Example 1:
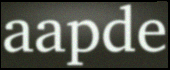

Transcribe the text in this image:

aapde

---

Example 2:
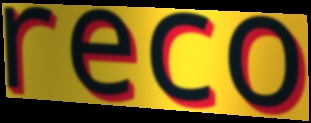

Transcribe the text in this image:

reco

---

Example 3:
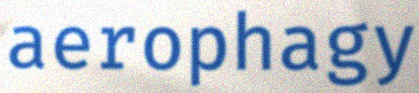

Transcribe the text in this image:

aerophagy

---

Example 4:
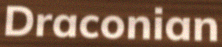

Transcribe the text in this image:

Draconian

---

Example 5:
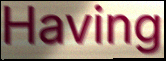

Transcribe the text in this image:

Having